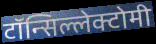
टॉन्सिल्लेक्टोमी